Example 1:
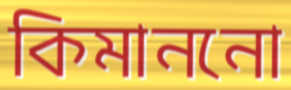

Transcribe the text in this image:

কিমাননো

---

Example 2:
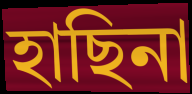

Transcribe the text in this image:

হাছিনা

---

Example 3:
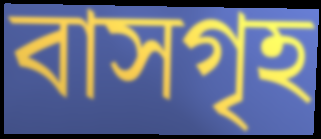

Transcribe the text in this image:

বাসগৃহ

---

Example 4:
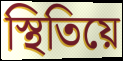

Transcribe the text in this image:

স্থিতিয়ে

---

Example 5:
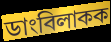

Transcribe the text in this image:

ডাংবিলাকক